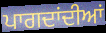
ਪਾਗਦਾਂਦੀਆਂ